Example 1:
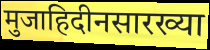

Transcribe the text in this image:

मुजाहिदीनसारख्या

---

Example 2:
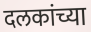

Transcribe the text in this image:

दलकांच्या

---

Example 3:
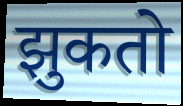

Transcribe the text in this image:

झुकतो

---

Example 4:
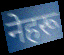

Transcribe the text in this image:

नेहरू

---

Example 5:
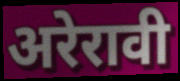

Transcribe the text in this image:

अरेरावी